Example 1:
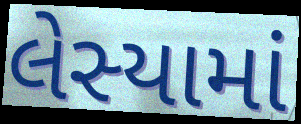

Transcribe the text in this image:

લેસ્યામાં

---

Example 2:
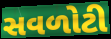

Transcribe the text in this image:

સવળોટી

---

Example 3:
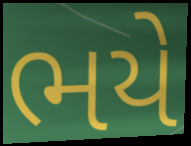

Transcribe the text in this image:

ભયે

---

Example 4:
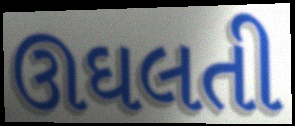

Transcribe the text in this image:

ઊઘલતી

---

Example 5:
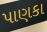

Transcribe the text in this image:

પાણકા